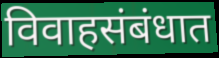
विवाहसंबंधात